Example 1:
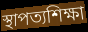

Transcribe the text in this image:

স্থাপত্যশিক্ষা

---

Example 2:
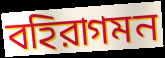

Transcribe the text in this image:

বহিরাগমন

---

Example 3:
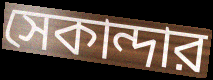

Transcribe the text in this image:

সেকান্দার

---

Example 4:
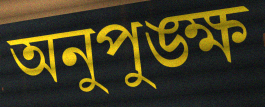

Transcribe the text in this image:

অনুপুঙ্ক্ষ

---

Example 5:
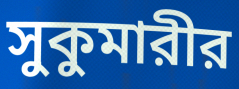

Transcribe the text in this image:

সুকুমারীর